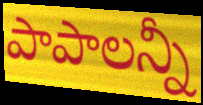
పాపాలన్నీ